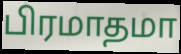
பிரமாதமா